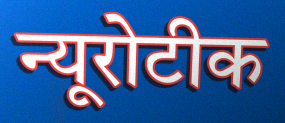
न्यूरोटीक